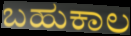
ಬಹುಕಾಲ